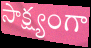
సాక్ష్యంగా